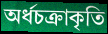
অর্ধচক্রাকৃতি